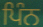
ਪਿੰਨ